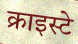
क्राइस्टे